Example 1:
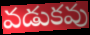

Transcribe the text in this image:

వడుకవు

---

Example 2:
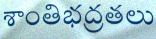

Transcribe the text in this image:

శాంతిభద్రతలు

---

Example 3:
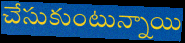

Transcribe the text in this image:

చేసుకుంటున్నాయి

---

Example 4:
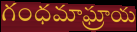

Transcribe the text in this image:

గంధమాఘ్రాయ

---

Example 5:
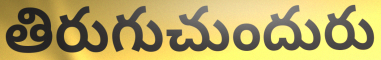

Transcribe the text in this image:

తిరుగుచుందురు